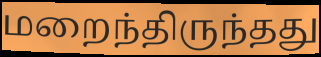
மறைந்திருந்தது